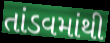
તાંડવમાંથી